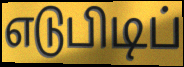
எடுபிடிப்